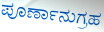
ಪೂರ್ಣಾನುಗ್ರಹ